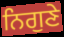
ਨਿਗੁਣੇ